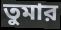
তুমার